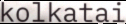
kolkatai